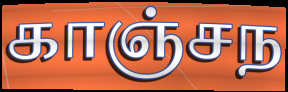
காஞ்சந